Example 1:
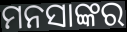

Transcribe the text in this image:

ମନସାଙ୍କର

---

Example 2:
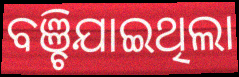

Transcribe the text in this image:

ବଞ୍ଚିଯାଇଥିଲା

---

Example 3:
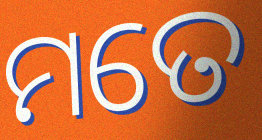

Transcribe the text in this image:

ମତେ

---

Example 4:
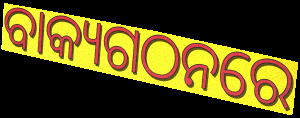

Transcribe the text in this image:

ବାକ୍ୟଗଠନରେ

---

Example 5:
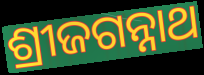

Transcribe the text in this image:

ଶ୍ରୀଜଗନ୍ନାଥ